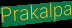
Prakalpa